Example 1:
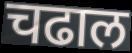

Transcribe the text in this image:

चढाल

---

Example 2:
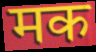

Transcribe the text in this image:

मक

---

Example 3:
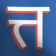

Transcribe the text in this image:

त्त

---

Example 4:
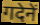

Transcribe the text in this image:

गदेनें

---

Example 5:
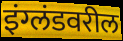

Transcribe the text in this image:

इंग्लंडवरील